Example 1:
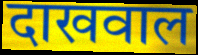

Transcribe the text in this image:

दाखवाल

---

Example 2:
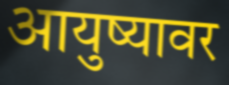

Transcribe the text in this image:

आयुष्यावर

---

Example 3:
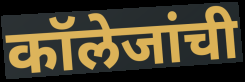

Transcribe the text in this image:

कॉलेजांची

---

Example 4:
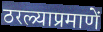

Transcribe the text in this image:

ठरल्याप्रमाणें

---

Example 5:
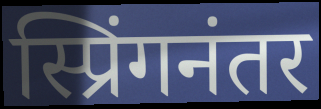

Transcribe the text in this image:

स्प्रिंगनंतर